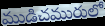
ముడిచమురులో